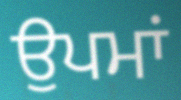
ਉਪਮਾਂ